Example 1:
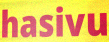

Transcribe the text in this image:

hasivu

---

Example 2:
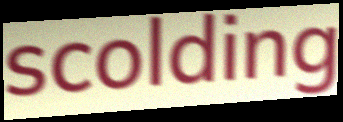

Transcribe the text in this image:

scolding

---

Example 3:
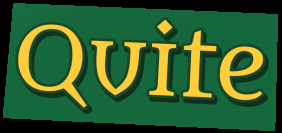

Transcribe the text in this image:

Quite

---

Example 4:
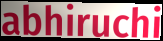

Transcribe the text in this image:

abhiruchi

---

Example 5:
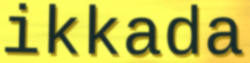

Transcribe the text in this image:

ikkada